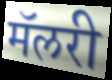
मॅलरी